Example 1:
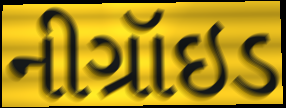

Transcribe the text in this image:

નીગ્રૉઇડ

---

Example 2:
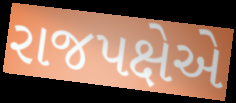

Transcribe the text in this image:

રાજપક્ષેએ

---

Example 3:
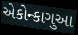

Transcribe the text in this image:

એકોન્કાગુઆ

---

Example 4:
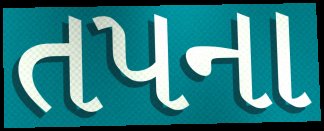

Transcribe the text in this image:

તપના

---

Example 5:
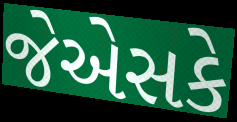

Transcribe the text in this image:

જેએસકે